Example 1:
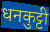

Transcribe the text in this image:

धनकुट्टी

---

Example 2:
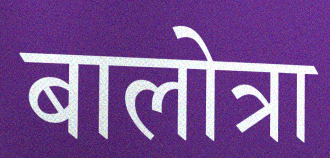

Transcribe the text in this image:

बालोत्रा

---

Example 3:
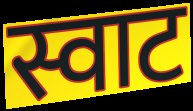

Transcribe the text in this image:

स्वाट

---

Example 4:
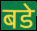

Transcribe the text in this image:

बडे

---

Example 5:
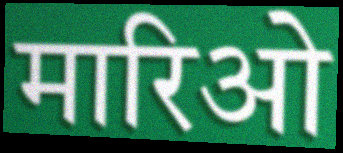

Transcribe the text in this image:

मारिओ